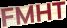
FMHT